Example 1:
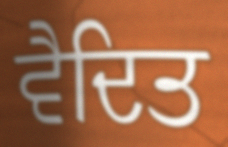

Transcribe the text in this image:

ਵੈਦਿਤ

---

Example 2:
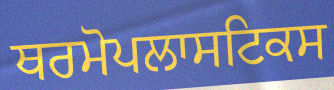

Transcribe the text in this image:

ਥਰਮੋਪਲਾਸਟਿਕਸ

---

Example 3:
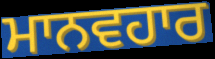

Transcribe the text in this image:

ਮਾਨਵਹਾਰ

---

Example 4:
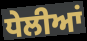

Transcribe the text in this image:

ਧੇਲੀਆਂ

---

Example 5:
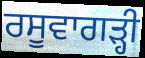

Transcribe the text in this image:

ਰਸੂਵਾਗੜ੍ਹੀ